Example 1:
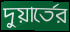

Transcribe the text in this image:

দুয়ার্তের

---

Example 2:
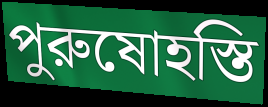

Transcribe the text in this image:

পুরুষোহস্তি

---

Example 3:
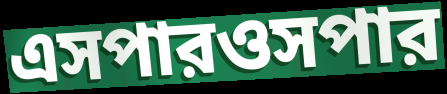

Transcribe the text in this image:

এসপারওসপার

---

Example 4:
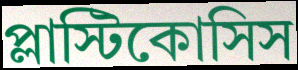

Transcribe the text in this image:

প্লাস্টিকোসিস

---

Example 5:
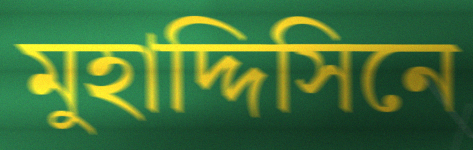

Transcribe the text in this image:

মুহাদ্দিসিনে